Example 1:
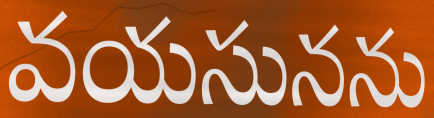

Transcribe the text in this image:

వయసునను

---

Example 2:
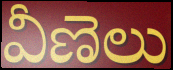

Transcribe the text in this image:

వీణెలు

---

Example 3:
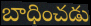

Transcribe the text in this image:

బాధించడు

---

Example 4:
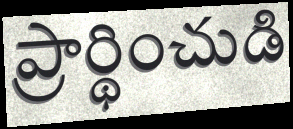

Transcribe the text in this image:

ప్రార్థించుడి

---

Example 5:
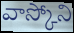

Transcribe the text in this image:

వాస్కోని